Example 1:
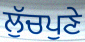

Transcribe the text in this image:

ਲੁੱਚਪੁਣੇ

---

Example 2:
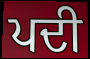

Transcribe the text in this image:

ਪਦੀ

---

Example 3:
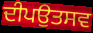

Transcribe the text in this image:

ਦੀਪਉਤਸਵ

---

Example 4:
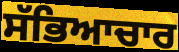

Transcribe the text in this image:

ਸੱਭਿਆਚਾਰ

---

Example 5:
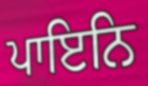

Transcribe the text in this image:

ਪਾਇਨਿ